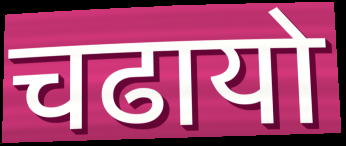
चढायो